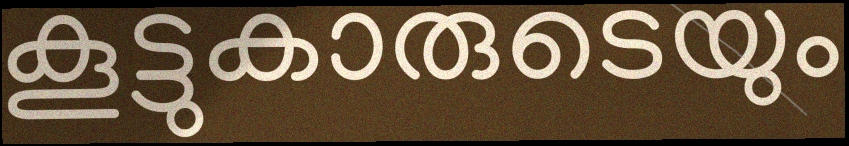
കൂട്ടുകാരുടെയും